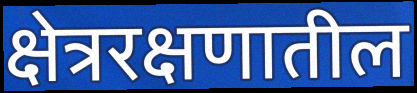
क्षेत्ररक्षणातील